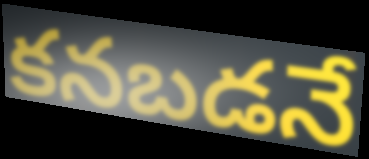
కనబడనే